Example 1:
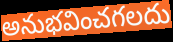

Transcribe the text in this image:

అనుభవించగలదు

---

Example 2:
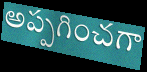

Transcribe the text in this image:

అప్పగించగా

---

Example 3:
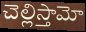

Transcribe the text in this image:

చెల్లిస్తామో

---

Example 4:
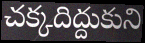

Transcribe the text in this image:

చక్కదిద్దుకుని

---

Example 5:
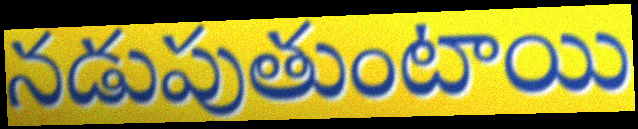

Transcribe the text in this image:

నడుపుతుంటాయి